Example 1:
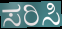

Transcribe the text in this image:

ಸರಿಸಿ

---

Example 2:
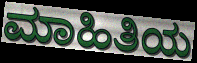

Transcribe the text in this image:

ಮಾಹಿತಿಯ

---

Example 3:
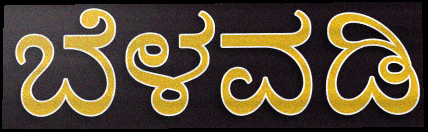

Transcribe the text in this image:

ಬೆಳವಡಿ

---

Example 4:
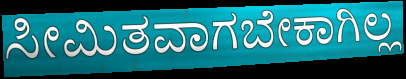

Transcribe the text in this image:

ಸೀಮಿತವಾಗಬೇಕಾಗಿಲ್ಲ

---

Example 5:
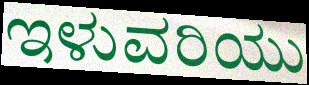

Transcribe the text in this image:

ಇಳುವರಿಯು